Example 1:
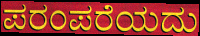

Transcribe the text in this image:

ಪರಂಪರೆಯದು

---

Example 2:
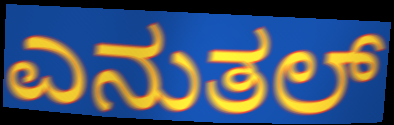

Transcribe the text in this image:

ಎನುತಲ್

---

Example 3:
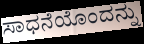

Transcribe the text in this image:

ಸಾಧನೆಯೊಂದನ್ನು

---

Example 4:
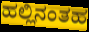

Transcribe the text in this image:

ಹಲ್ಲಿನಂತಹ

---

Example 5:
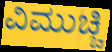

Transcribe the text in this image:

ವಿಮುಚ್ಚಿ